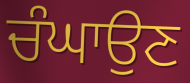
ਚੰਘਾਉਣ